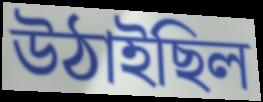
উঠাইছিল